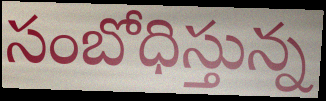
సంబోధిస్తున్న